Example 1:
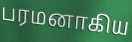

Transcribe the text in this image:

பரமனாகிய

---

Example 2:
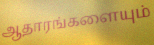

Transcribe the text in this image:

ஆதாரங்களையும்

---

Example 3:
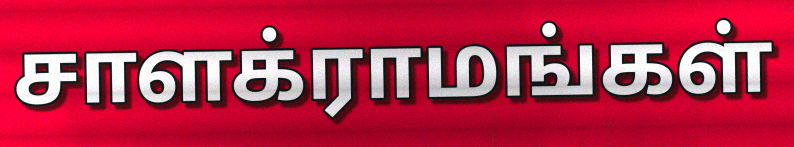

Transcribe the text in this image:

சாளக்ராமங்கள்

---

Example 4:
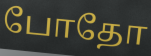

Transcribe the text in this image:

போதோ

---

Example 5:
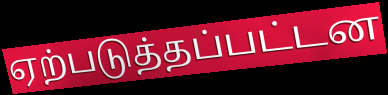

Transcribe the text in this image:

ஏற்படுத்தப்பட்டன